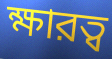
ক্ষারত্ব